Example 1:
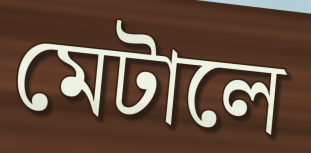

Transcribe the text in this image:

মেটালে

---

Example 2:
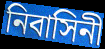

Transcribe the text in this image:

নিবাসিনী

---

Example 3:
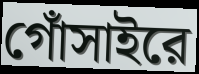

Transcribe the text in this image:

গোঁসাইরে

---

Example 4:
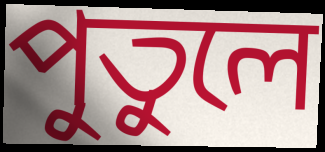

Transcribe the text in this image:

পুতুলে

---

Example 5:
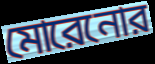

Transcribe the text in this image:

মোরেনোর